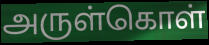
அருள்கொள்